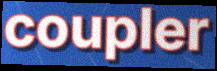
coupler